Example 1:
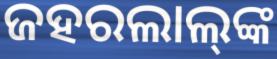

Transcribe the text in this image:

ଜହରଲାଲ୍‌ଙ୍କ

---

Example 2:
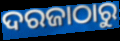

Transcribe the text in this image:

ଦରଜାଠାରୁ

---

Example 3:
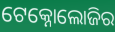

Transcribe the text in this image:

ଟେକ୍ନୋଲୋଜିର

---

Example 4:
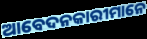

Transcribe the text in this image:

ଆବେଦନକାରୀମାନେ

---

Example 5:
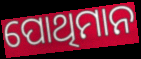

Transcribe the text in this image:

ପୋଥିମାନ